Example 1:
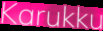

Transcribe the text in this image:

Karukku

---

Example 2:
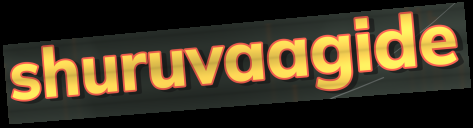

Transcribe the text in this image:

shuruvaagide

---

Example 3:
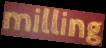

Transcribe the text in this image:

milling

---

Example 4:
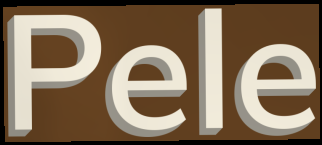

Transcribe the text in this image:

Pele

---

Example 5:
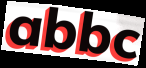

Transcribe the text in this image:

abbc